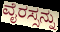
ವೈರಸ್ಸನ್ನು